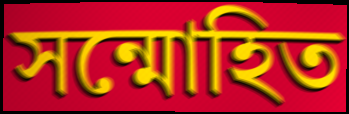
সন্মোহিত